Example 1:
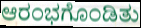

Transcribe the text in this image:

ಆರಂಭಗೊಂಡಿತು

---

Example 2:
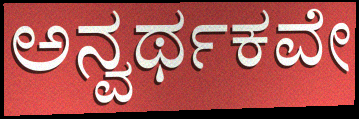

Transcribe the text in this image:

ಅನ್ವರ್ಥಕವೇ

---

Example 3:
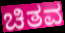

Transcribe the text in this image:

ಚಿತವ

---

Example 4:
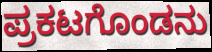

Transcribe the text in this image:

ಪ್ರಕಟಗೊಂಡನು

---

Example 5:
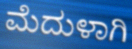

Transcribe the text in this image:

ಮೆದುಳಾಗಿ